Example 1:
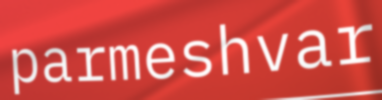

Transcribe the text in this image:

parmeshvar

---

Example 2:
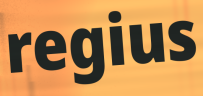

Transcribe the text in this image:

regius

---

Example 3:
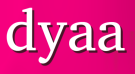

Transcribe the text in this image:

dyaa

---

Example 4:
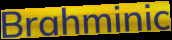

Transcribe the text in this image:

Brahminic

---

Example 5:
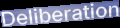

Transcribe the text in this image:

Deliberation